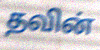
தவின்